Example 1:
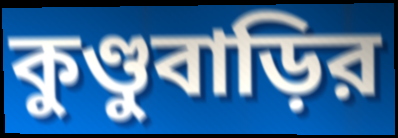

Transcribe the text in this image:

কুণ্ডুবাড়ির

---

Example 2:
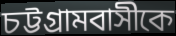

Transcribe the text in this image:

চট্টগ্রামবাসীকে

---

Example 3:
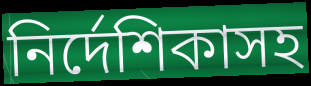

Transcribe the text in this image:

নির্দেশিকাসহ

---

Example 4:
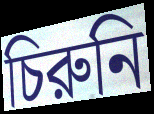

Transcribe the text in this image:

চিরুনি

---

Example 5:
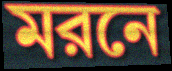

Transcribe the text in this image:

মরনে